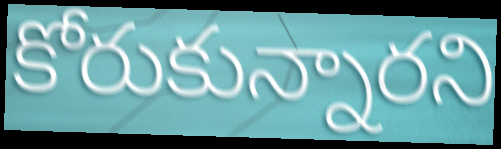
కోరుకున్నారని